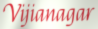
Vijianagar